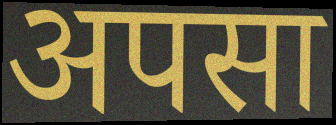
अपसा